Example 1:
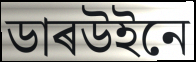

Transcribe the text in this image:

ডাৰউইনে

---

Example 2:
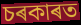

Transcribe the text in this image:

চৰকাৰত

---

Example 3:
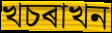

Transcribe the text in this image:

খচৰাখন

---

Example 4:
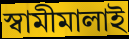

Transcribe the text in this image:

স্বামীমালাই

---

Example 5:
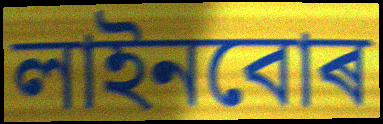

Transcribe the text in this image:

লাইনবোৰ